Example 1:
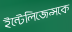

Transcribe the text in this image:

ইন্টেলিজেন্সকে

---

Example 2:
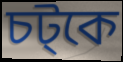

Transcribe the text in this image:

চট্‌কে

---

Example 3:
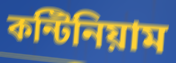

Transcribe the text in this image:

কন্টিনিয়াম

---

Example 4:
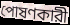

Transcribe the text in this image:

পোষণকারী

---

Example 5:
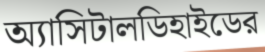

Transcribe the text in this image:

অ্যাসিটালডিহাইডের